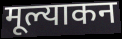
मूल्याकन